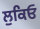
ਲੁਕਿਓ